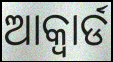
ଆକ୍ୱାର୍ଡ